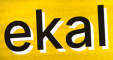
ekal